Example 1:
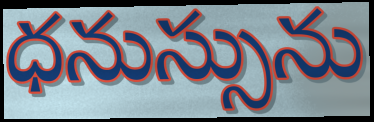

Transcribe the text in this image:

ధనుస్సును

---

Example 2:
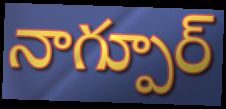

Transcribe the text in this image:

నాగ్పూర్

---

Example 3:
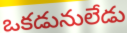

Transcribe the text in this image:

ఒకడునులేడు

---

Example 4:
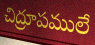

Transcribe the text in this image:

చిద్రూపములే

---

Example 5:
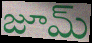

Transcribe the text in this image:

జూమ్